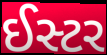
ઈસ્ટર